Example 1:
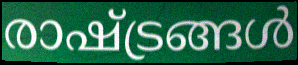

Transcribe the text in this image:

രാഷ്ട്രങ്ങൾ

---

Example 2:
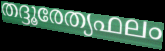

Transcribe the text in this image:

തദ്ദൂരേത്യഫലം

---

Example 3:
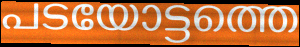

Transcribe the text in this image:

പടയോട്ടത്തെ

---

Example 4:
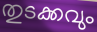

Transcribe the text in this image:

തുടക്കവും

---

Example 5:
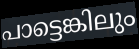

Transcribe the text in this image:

പാട്ടെങ്കിലും